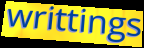
writtings